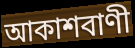
আকাশবাণী